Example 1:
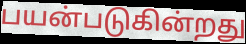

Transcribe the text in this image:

பயன்படுகின்றது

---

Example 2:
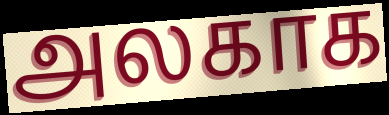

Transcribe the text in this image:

அலகாக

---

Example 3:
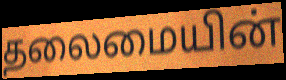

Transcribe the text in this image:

தலைமையின்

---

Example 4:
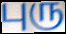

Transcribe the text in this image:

புரு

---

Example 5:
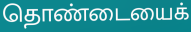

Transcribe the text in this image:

தொண்டையைக்